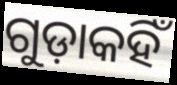
ଗୁଡ଼ାକହିଁ